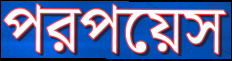
পরপয়েস